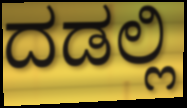
ದಡಲ್ಲಿ